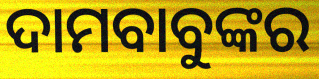
ଦାମବାବୁଙ୍କର